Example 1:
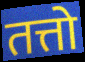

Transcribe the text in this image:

तत्तो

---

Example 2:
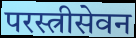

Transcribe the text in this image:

परस्त्रीसेवन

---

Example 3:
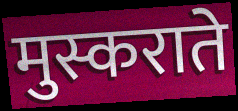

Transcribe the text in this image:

मुस्‍कराते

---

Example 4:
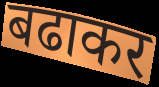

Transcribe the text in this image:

बढाकर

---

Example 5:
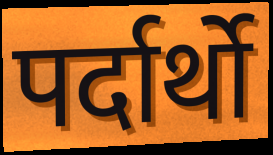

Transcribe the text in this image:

पर्दार्थो